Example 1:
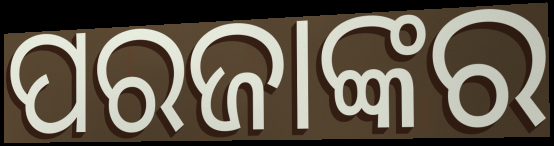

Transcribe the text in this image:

ପରଜାଙ୍କର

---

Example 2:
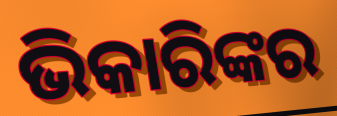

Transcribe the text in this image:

ଭିକାରିଙ୍କର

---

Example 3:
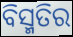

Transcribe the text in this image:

ବିସ୍ମତିର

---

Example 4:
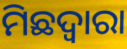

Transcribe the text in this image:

ମିଛଦ୍ଵାରା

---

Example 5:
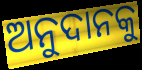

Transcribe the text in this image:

ଅନୁଦାନକୁ